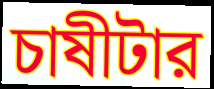
চাষীটার